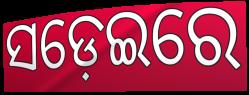
ସଡ଼େଇରେ